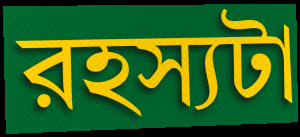
রহস্যটা